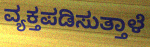
ವ್ಯಕ್ತಪಡಿಸುತ್ತಾಳೆ